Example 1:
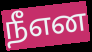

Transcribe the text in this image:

நீஎன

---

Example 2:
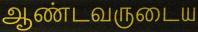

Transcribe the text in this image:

ஆண்டவருடைய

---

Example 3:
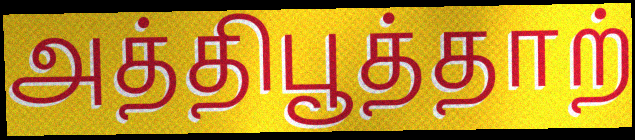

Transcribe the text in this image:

அத்திபூத்தாற்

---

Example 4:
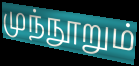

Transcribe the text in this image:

முந்நூறும்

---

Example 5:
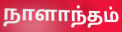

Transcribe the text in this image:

நாளாந்தம்